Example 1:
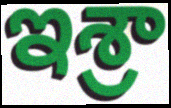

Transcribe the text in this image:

ఇశ్రా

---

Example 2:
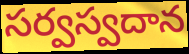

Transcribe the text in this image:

సర్వస్వదాన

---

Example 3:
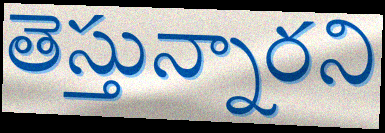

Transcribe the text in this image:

తెస్తున్నారని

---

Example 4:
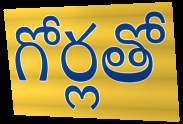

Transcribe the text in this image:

గోర్లతో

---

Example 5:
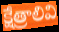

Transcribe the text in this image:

క్షేత్రాలివి